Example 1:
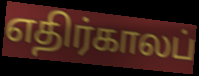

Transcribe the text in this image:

எதிர்காலப்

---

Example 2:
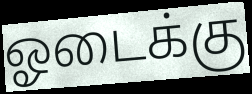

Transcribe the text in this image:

ஓடைக்கு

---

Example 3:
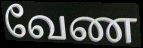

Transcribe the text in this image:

வேண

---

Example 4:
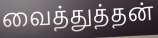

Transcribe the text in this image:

வைத்துத்தன்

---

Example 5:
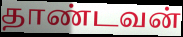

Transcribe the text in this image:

தாண்டவன்